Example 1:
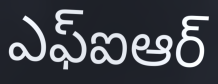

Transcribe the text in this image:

ఎఫ్ఐఆర్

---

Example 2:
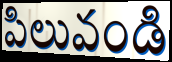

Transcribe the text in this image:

పిలువండి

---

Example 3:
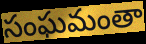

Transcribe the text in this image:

సంఘమంతా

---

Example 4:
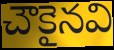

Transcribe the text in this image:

చౌకైనవి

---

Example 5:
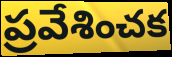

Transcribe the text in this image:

ప్రవేశించక